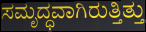
ಸಮೃದ್ಧವಾಗಿರುತ್ತಿತ್ತು